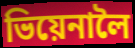
ভিয়েনালৈ